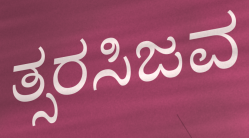
ತ್ಸರಸಿಜವ